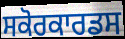
ਸਕੋਰਕਾਰਡਸ